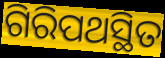
ଗିରିପଥସ୍ଥିତ